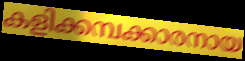
കളിക്കമ്പക്കാരനായ